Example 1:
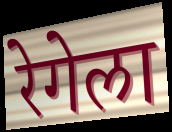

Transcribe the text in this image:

रेगेला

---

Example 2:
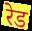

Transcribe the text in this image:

रेड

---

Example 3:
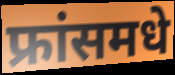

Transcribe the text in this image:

फ्रांसमधे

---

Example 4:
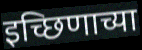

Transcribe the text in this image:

इच्छिणाच्या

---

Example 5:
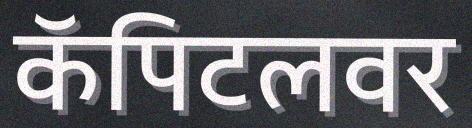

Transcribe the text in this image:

कॅपिटलवर